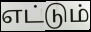
எட்டும்